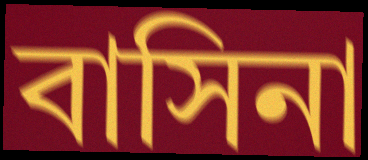
বাসিনা